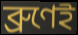
ব্ৰুণেই